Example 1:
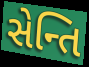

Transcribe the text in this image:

સેન્તિ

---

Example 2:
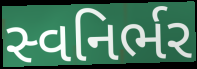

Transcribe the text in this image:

સ્વનિર્ભર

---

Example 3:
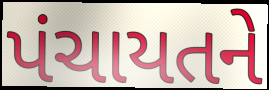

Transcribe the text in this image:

પંચાયતને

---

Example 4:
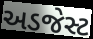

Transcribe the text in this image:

અડજેસ્ટ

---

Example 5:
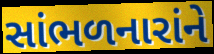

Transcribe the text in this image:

સાંભળનારાંને